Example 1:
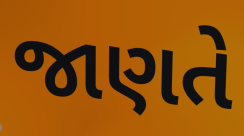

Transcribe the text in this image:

જાણતે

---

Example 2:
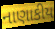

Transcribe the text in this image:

નાણાકીય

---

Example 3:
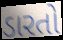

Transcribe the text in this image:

ડારતો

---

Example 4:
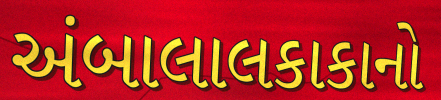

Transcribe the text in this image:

અંબાલાલકાકાનો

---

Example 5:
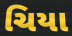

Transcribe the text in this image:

ચિયા